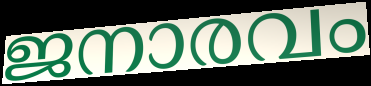
ജനാരവം